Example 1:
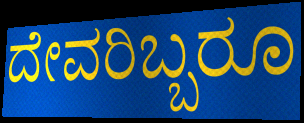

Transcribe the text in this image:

ದೇವರಿಬ್ಬರೂ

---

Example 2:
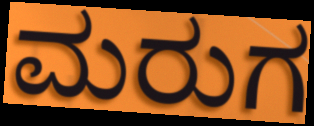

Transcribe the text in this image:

ಮರುಗ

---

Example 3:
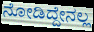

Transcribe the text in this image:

ನೋಡಿದ್ದೇನಲ್ಲ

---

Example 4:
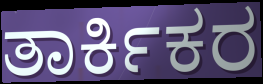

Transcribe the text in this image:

ತಾರ್ಕಿಕರ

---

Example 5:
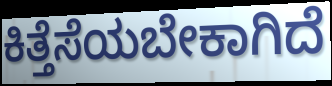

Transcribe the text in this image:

ಕಿತ್ತೆಸೆಯಬೇಕಾಗಿದೆ